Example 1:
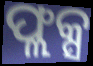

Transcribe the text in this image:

ଫ୍ଲକ୍ସ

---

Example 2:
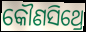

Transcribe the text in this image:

କୌଣସିଥ୍ରେ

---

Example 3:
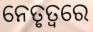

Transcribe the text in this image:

ନେତୃତ୍ଵରେ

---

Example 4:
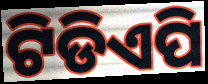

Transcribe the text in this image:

ଟିଡିଏପି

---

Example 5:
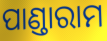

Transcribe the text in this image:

ପାଣ୍ଡାରାମ